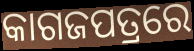
କାଗଜପତ୍ରରେ